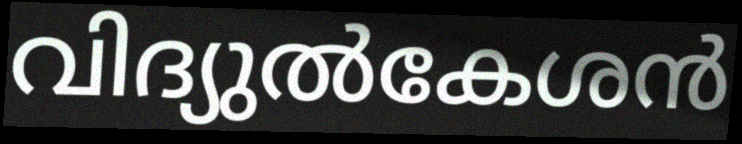
വിദ്യുൽകേശൻ